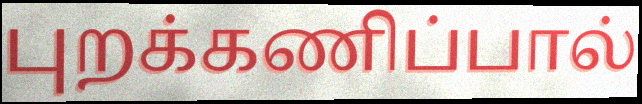
புறக்கணிப்பால்